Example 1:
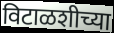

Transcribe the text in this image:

विटाळशीच्या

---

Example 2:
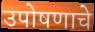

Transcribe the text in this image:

उपोषणाचे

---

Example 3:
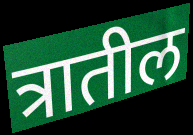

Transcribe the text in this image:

त्रातील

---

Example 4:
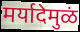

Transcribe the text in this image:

मर्यादेमुळं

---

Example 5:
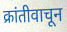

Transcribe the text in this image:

क्रांतीवाचून